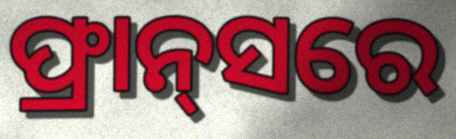
ଫ୍ରାନ୍‌ସରେ